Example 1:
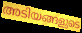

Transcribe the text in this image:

അടിയങ്ങളുടെ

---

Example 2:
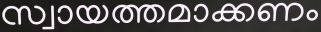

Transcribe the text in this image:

സ്വായത്തമാക്കണം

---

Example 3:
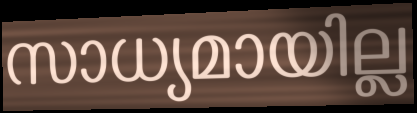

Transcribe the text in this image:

സാധ്യമായില്ല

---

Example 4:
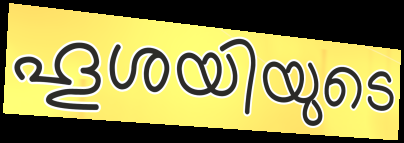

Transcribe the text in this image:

ഹൂശയിയുടെ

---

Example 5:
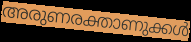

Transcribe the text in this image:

അരുണരക്താണുക്കൾ